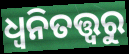
ଧ୍ୱନିତତ୍ତ୍ୱରୁ